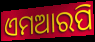
ଏମଆରପି